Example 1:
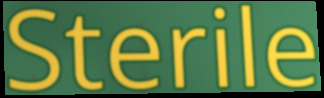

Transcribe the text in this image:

Sterile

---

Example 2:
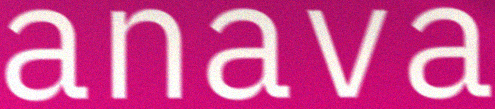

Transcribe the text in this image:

anava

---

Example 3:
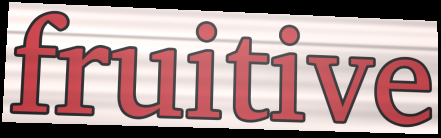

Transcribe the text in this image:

fruitive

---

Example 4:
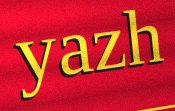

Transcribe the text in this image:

yazh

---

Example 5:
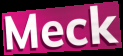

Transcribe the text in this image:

Meck